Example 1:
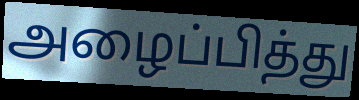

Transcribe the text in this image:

அழைப்பித்து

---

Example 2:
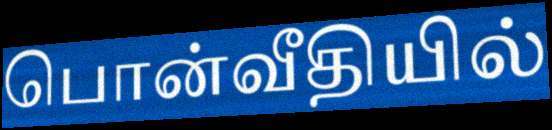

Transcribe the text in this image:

பொன்வீதியில்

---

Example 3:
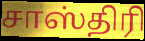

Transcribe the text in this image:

சாஸ்திரி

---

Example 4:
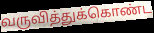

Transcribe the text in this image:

வருவித்துக்கொண்ட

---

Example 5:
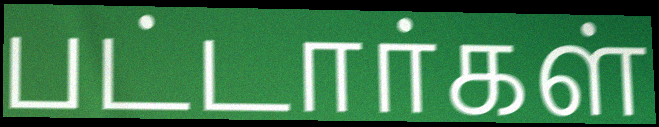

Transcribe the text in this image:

பட்டார்கள்